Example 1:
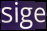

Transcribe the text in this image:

sige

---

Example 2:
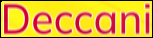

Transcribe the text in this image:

Deccani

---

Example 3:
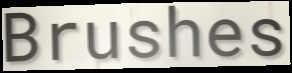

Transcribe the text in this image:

Brushes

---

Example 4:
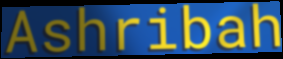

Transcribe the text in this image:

Ashribah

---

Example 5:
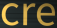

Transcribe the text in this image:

cre